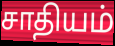
சாதியம்